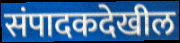
संपादकदेखील